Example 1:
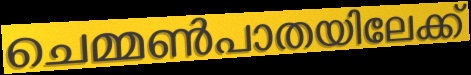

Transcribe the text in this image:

ചെമ്മൺപാതയിലേക്ക്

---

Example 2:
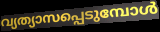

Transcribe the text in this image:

വ്യത്യാസപ്പെടുമ്പോൾ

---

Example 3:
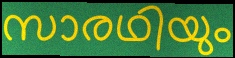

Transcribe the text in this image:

സാരഥിയും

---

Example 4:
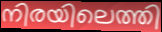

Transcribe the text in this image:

നിരയിലെത്തി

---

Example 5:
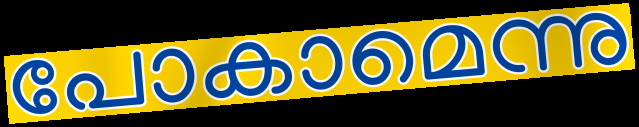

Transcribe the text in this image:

പോകാമെന്നു